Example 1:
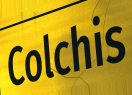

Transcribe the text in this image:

Colchis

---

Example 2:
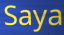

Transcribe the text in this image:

Saya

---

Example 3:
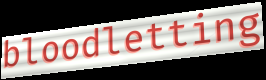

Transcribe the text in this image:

bloodletting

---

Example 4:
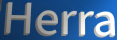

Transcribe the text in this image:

Herra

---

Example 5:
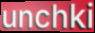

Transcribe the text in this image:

unchki